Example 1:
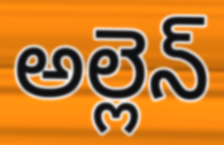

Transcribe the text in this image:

అల్లెన్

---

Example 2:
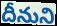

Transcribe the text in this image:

దీనుని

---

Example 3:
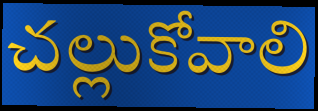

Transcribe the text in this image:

చల్లుకోవాలి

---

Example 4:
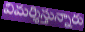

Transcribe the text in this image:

విమర్శిస్తున్నారు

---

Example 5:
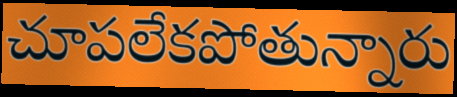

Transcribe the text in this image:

చూపలేకపోతున్నారు